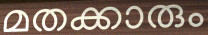
മതക്കാരും